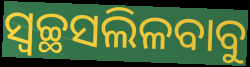
ସ୍ୱଚ୍ଛସଲିଳବାବୁ